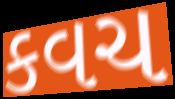
કવચ